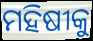
ମହିଷୀକୁ